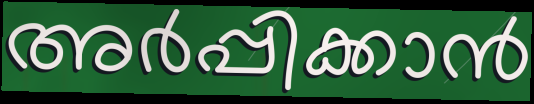
അർപ്പിക്കാൻ